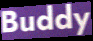
Buddy